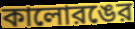
কালোরঙের